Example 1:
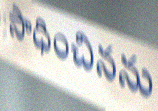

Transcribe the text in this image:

సాధించినను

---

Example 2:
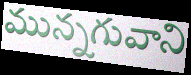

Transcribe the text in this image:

మున్నగువాని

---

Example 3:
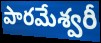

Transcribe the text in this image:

పారమేశ్వరీ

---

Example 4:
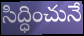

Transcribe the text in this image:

సిద్ధించునే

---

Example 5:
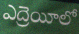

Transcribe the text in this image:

ఎద్రెయీలో